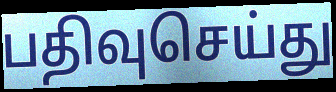
பதிவுசெய்து